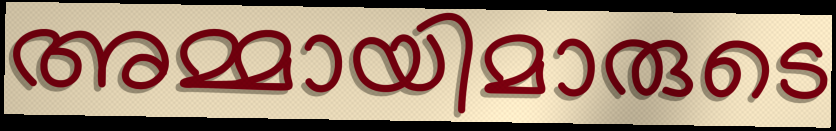
അമ്മായിമാരുടെ